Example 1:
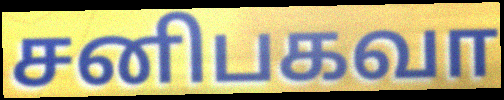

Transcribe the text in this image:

சனிபகவா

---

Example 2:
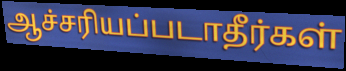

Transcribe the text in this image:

ஆச்சரியப்படாதீர்கள்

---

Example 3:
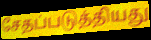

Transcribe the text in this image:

சேதப்படுத்தியது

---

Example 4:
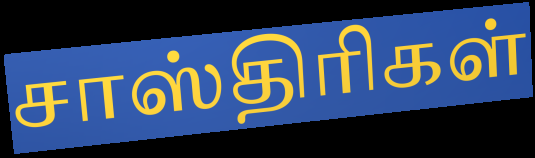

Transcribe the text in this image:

சாஸ்திரிகள்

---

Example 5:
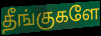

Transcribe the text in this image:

தீங்குகளே